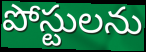
పోస్టులను